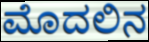
ಮೊದಲಿನ